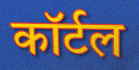
कॉर्टल